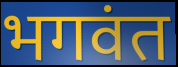
भगवंत